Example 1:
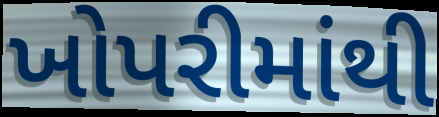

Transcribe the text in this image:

ખોપરીમાંથી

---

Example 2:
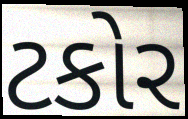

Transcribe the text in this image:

ટકોર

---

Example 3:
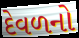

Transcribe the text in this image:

દેવળનો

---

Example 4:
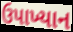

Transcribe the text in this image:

ઉપાખ્યાન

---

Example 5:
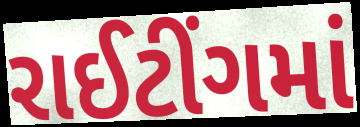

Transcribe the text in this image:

રાઈટીંગમાં